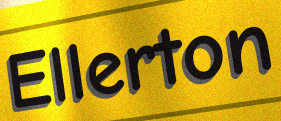
Ellerton